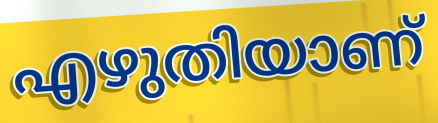
എഴുതിയാണ്